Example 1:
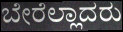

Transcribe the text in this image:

ಬೇರೆಲ್ಲಾದರು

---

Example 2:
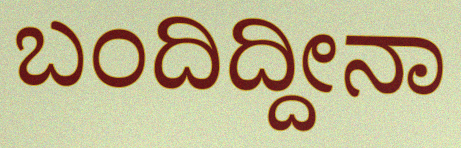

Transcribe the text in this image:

ಬಂದಿದ್ದೀನಾ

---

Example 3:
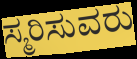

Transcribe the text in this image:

ಸ್ಮರಿಸುವರು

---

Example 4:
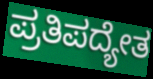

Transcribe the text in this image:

ಪ್ರತಿಪದ್ಯೇತ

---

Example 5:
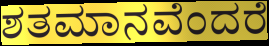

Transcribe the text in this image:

ಶತಮಾನವೆಂದರೆ